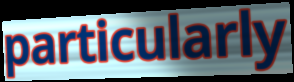
particularly